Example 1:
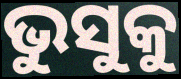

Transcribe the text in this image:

ଭୁସୁକୁ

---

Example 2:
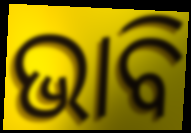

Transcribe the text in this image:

ଭାବି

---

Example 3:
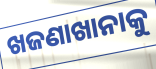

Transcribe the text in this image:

ଖଜଣାଖାନାକୁ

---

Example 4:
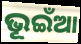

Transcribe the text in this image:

ଭୂଇଁଆ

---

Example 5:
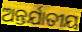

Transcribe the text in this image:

ଅନ୍ତର୍ଯାତୀୟ